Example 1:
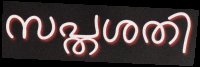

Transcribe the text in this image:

സപ്തശതി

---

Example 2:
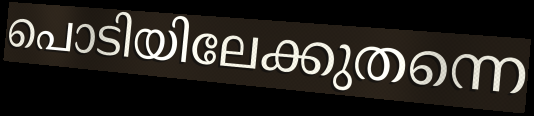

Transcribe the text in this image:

പൊടിയിലേക്കുതന്നെ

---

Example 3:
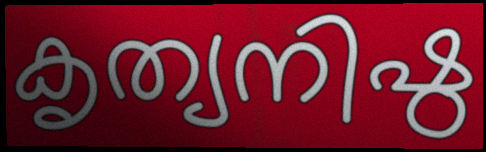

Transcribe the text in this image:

കൃത്യനിഷ്ഠ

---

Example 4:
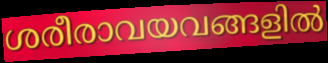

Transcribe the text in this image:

ശരീരാവയവങ്ങളിൽ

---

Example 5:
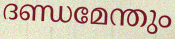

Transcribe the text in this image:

ദണ്ഡമേന്തും